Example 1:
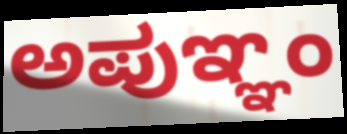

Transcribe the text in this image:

ಅಪುಞ್ಞಂ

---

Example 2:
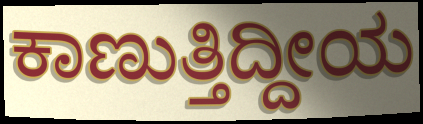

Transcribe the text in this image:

ಕಾಣುತ್ತಿದ್ದೀಯ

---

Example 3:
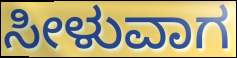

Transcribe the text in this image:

ಸೀಳುವಾಗ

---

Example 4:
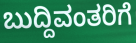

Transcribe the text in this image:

ಬುದ್ದಿವಂತರಿಗೆ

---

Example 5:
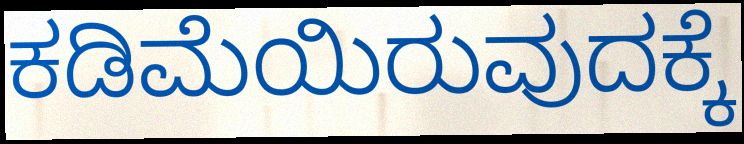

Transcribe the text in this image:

ಕಡಿಮೆಯಿರುವುದಕ್ಕೆ